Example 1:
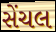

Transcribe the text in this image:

સેંચલ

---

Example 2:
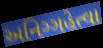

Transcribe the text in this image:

અનિગ્ગહેત્વા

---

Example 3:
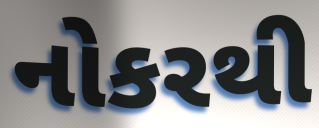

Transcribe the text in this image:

નોકરથી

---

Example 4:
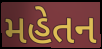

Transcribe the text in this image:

મહેતન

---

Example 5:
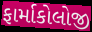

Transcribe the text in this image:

ફાર્માકોલોજી